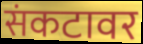
संकटावर